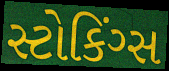
સ્ટોકિંગ્સ